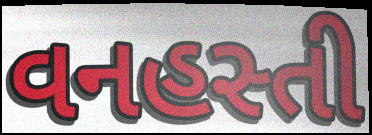
વનહસ્તી